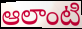
ఆలాంటి